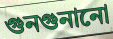
গুনগুনানো